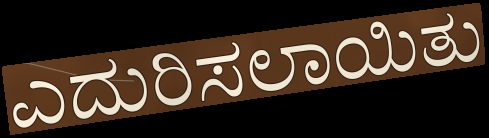
ಎದುರಿಸಲಾಯಿತು